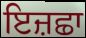
ਇਜ਼ਛਾ